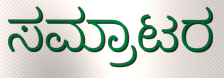
ಸಮ್ರಾಟರ